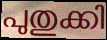
പുതുക്കി